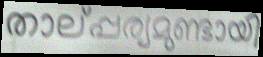
താല്പ്പര്യമുണ്ടായി